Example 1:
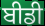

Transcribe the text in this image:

ਬੀਡੀ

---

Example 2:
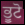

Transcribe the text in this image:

ਭੂਟੋ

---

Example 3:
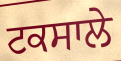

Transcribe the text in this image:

ਟਕਸਾਲੇ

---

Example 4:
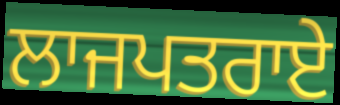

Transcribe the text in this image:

ਲਾਜਪਤਰਾਏ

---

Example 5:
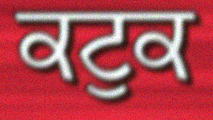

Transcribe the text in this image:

ਕਟੁਕ